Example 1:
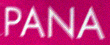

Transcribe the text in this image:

PANA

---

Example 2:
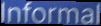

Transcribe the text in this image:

Informal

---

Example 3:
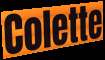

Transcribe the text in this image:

Colette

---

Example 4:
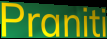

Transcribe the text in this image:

Praniti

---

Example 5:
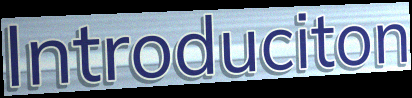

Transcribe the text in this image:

Introduciton